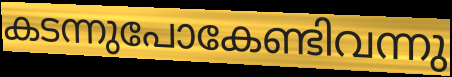
കടന്നുപോകേണ്ടിവന്നു